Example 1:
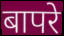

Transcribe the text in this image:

बापरे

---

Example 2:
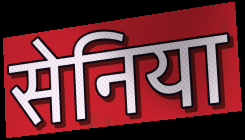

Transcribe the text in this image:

सेनिया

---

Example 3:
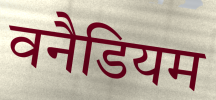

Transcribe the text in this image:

वनैडियम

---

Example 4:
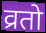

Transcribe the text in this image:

व्रतो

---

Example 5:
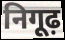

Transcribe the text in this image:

निगूढ़